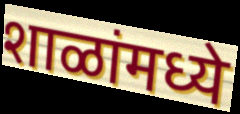
शाळांमध्ये